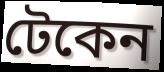
টেকেন